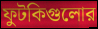
ফুটকিগুলোর